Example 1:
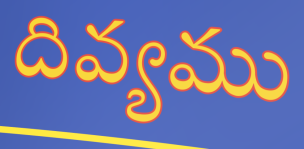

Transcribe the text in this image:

దివ్యము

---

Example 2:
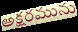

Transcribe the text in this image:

అక్షరమును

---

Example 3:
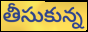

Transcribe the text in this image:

తీసుకున్న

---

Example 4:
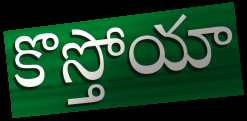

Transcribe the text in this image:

కొస్తోయా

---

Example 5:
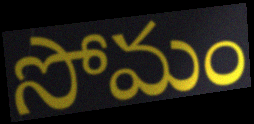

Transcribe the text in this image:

సోమం